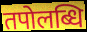
तपोलब्धि